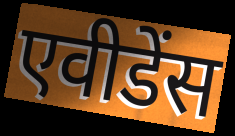
एवीडेंस